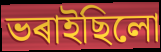
ভৰাইছিলো